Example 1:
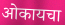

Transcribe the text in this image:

ओकायचा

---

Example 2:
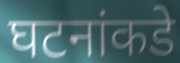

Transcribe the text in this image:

घटनांकडे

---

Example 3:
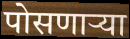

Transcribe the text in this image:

पोसणाऱ्या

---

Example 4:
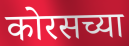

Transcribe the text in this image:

कोरसच्या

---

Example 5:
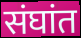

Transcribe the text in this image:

संघांत